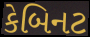
કેબિનટ